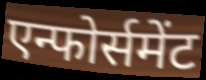
एन्फोर्समेंट